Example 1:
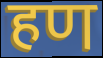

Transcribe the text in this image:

हण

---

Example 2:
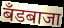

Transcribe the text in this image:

बँडबाजा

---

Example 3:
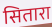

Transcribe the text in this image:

सितारा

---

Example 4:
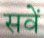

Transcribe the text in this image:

सवें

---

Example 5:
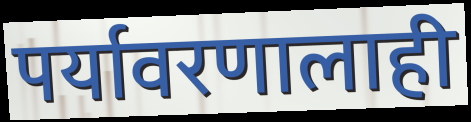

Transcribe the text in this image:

पर्यावरणालाही